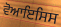
ਵੋਆਇਸਿਸ